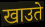
खाउते